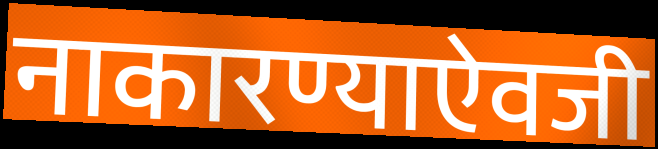
नाकारण्याऐवजी